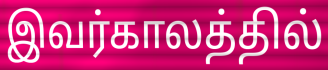
இவர்காலத்தில்